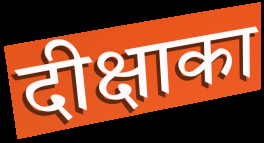
दीक्षाका